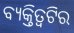
ବ୍ୟକ୍ତିତ୍ୱଟିର